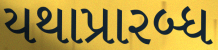
યથાપ્રારબ્ધ